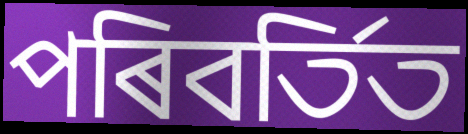
পৰিবৰ্তিত